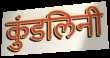
कुंडलिनी